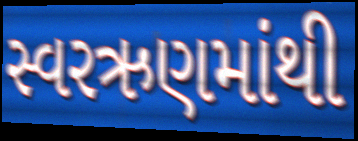
સ્વરઋણમાંથી